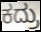
ಕದ್ರು